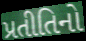
પ્રતીતિનો